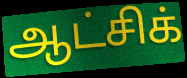
ஆட்சிக்